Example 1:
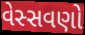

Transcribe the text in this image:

વેસ્સવણો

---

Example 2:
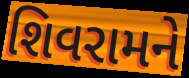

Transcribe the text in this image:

શિવરામને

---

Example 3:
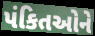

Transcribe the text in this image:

પંકિતઓને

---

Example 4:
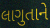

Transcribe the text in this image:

લાગુતાને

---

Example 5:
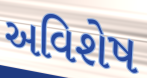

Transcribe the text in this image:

અવિશેષ